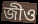
জীও